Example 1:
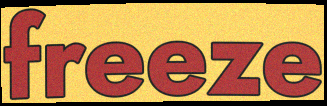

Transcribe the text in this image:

freeze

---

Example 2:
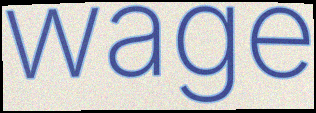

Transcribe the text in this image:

wage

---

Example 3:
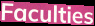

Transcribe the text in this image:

Faculties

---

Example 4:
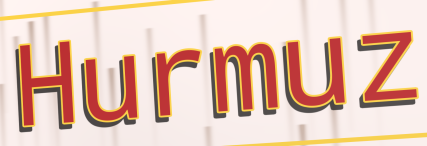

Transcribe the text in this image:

Hurmuz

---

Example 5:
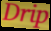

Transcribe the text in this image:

Drip